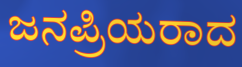
ಜನಪ್ರಿಯರಾದ